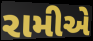
રામીએ